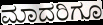
ಮಾದರಿಗೂ